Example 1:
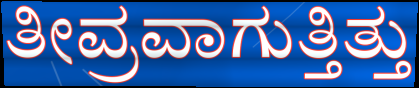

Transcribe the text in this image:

ತೀವ್ರವಾಗುತ್ತಿತ್ತು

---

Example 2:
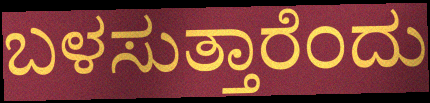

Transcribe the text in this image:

ಬಳಸುತ್ತಾರೆಂದು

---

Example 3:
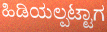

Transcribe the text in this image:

ಹಿಡಿಯಲ್ಪಟ್ಟಾಗ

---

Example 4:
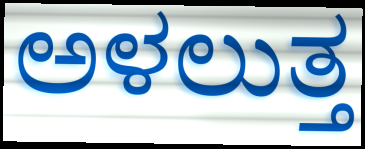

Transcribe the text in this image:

ಅಳಲುತ್ತ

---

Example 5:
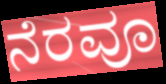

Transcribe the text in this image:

ನೆರವೂ